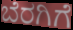
ಬೆರಗಿಗೆ